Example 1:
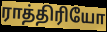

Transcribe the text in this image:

ராத்திரியோ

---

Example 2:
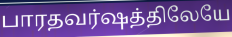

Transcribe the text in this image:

பாரதவர்ஷத்திலேயே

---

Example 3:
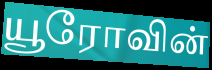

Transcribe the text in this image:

யூரோவின்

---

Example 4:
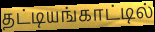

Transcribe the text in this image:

தட்டியங்காட்டில்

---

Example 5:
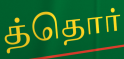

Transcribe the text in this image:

த்தொர்